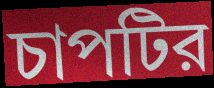
চাপটির